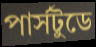
পার্সটুডে